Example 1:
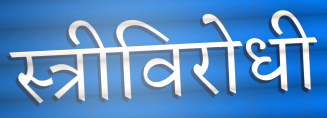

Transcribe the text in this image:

स्त्रीविरोधी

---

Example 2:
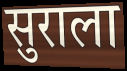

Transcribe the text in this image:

सुराला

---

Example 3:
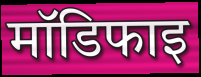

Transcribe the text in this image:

मॉडिफाइ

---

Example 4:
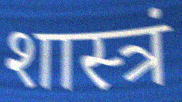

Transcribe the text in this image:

शास्त्रं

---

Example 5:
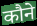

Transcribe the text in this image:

कौने